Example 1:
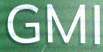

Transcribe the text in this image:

GMI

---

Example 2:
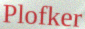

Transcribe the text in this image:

Plofker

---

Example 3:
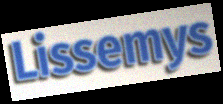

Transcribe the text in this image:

Lissemys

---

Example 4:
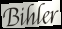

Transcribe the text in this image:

Bihler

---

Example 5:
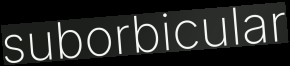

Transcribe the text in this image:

suborbicular